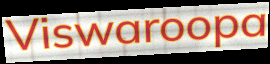
Viswaroopa